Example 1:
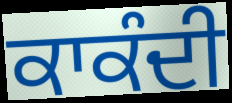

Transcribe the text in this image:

ਕਾਕੰਦੀ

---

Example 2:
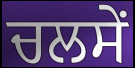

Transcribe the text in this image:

ਚਲਸੇਂ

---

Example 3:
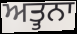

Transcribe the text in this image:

ਅਤ੍ਤਨਾ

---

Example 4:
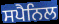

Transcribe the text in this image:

ਸਪੈਨਿਲ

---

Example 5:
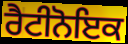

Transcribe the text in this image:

ਰੈਟੀਨੋਇਕ